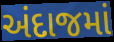
અંદાજમાં